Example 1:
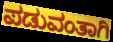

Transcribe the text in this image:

ಪಡುವಂತಾಗಿ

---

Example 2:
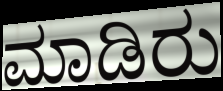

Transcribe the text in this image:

ಮಾಡಿರು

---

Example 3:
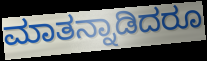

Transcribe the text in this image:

ಮಾತನ್ನಾಡಿದರೂ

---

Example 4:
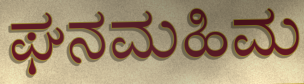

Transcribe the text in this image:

ಘನಮಹಿಮ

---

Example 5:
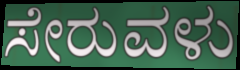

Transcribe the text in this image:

ಸೇರುವಳು